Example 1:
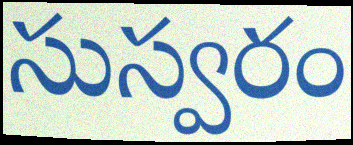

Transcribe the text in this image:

సుస్వరం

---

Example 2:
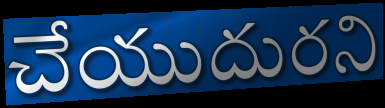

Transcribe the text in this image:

చేయుదురని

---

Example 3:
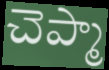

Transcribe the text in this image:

చెప్మా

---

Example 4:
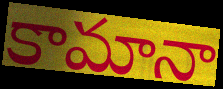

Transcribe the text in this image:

కామానా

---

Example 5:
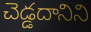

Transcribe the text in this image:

చెడ్డదానిని